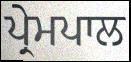
ਪ੍ਰੇਮਪਾਲ